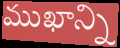
ముఖాన్ని